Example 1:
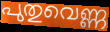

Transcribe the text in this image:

പുതുവെണ്ണ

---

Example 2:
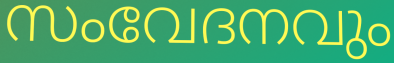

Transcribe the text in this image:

സംവേദനവും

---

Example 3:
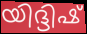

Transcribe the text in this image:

യിദ്ദിഷ്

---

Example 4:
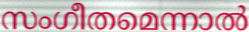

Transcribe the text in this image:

സംഗീതമെന്നാൽ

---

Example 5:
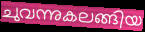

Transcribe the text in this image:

ചുവന്നുകലങ്ങിയ